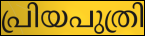
പ്രിയപുത്രി